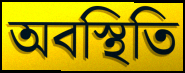
অবস্থিতি